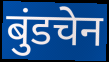
बुंडचेन